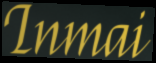
Inmai